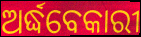
ଅର୍ଦ୍ଧବେକାରୀ